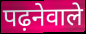
पढ़नेवाले